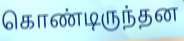
கொண்டிருந்தன